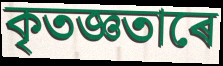
কৃতজ্ঞতাৰে